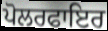
ਪੋਲਰਫਾਇਰ